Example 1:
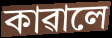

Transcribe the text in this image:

কাৱালে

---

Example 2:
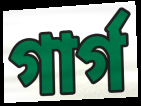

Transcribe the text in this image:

গাৰ্গ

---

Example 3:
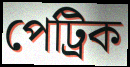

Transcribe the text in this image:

পেট্ৰিক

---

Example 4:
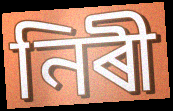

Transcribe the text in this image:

নিৰী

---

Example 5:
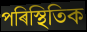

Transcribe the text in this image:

পৰিস্থিতিক